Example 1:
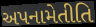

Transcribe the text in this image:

અપનામેતીતિ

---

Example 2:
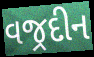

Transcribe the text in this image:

વજ્રદીન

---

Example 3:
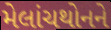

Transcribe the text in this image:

મેલાંચથોનને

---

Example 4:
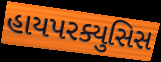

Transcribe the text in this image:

હાયપરક્યુસિસ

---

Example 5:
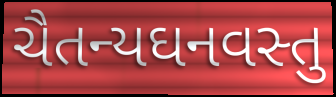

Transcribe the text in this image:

ચૈતન્યઘનવસ્તુ